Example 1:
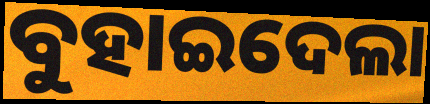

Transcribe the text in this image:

ବୁହାଇଦେଲା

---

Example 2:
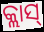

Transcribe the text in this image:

କ୍ଲାସ୍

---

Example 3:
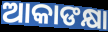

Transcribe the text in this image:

ଆକାଙକ୍ଷା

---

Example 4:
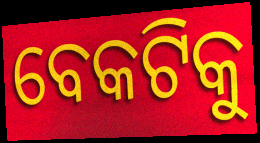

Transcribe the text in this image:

ବେକଟିକୁ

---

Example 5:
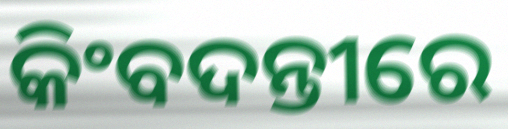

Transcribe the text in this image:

କିଂବଦନ୍ତୀରେ